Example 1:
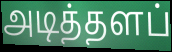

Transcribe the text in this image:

அடித்தளப்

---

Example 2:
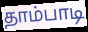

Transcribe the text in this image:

தாம்பாடி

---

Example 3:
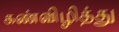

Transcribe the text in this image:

கண்விழித்து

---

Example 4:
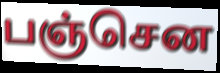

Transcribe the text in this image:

பஞ்சென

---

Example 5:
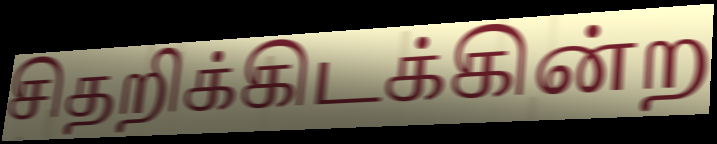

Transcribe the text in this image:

சிதறிக்கிடக்கின்ற